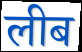
लीब